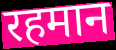
रहमान